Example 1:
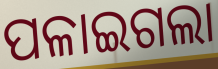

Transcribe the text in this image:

ପଳାଇଗଲା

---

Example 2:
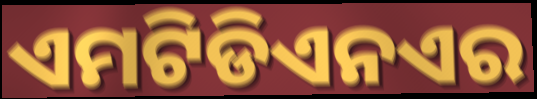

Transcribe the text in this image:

ଏମଟିଡିଏନଏର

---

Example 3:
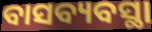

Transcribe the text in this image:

ବାସବ୍ୟବସ୍ଥା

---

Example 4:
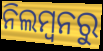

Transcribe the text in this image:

ନିଲମ୍ବନରୁ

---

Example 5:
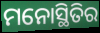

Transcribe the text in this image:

ମନୋସ୍ଥିତିର